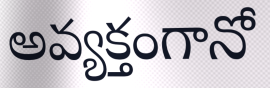
అవ్యక్తంగానో